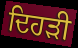
ਦਿਹੜੀ